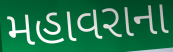
મહાવરાના